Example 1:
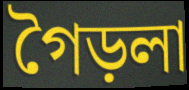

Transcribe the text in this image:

গৈড়লা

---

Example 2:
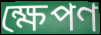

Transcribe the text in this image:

ক্ষেপণ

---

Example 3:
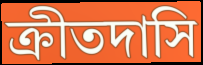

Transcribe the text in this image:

ক্রীতদাসি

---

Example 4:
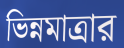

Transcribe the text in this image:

ভিন্নমাত্রার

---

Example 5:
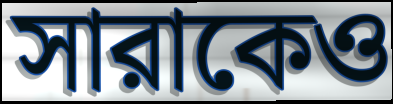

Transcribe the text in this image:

সারাকেও